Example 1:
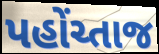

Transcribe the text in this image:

પહોંચ્તાજ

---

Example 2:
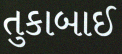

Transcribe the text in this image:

તુકાબાઈ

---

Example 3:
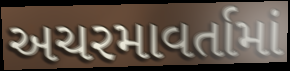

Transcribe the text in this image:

અચરમાવર્તામાં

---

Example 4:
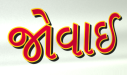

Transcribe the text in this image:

જોવાઈ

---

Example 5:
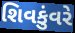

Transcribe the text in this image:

શિવકુંવરે